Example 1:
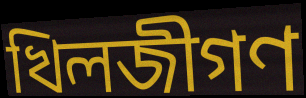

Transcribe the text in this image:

খিলজীগণ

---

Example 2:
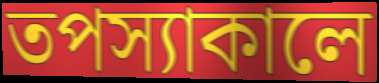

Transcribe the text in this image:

তপস্যাকালে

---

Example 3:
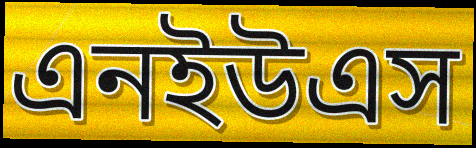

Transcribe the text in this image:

এনইউএস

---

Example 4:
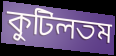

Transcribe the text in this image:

কুটিলতম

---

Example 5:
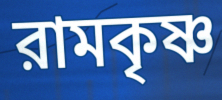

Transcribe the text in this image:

রামকৃষ্ণ